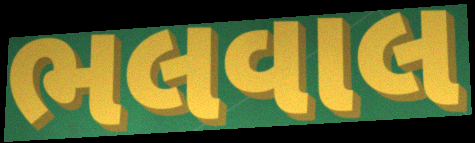
ભલવાલ